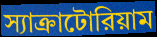
স্যাক্রাটোরিয়াম